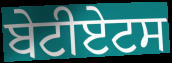
ਬੇਟੀਏਟਸ